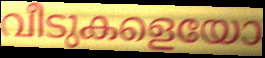
വീടുകളെയോ